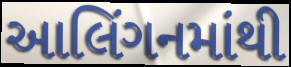
આલિંગનમાંથી